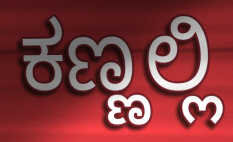
ಕಣ್ಣಲ್ಲಿ